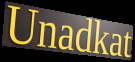
Unadkat